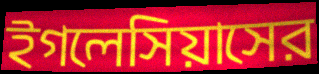
ইগলেসিয়াসের